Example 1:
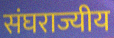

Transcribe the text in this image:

संघराज्यीय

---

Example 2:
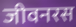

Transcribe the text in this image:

जीवनरस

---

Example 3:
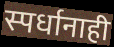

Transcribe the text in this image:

स्पर्धानाही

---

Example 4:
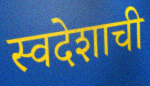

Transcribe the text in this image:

स्वदेशाची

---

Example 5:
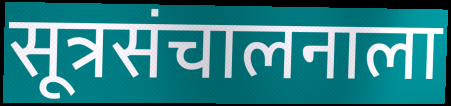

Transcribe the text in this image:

सूत्रसंचालनाला